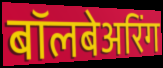
बॉलबेअरिंग